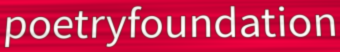
poetryfoundation